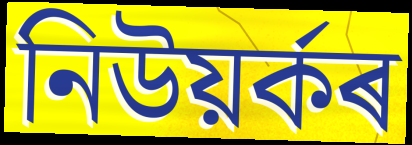
নিউয়ৰ্কৰ